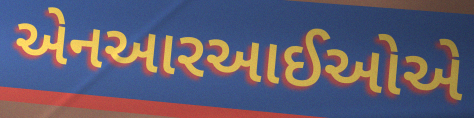
એનઆરઆઈઓએ